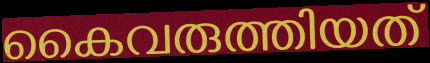
കൈവരുത്തിയത്